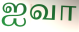
ஐவா